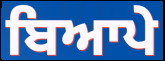
ਬਿਆਪੇ